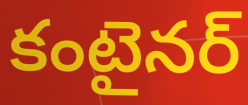
కంటైనర్